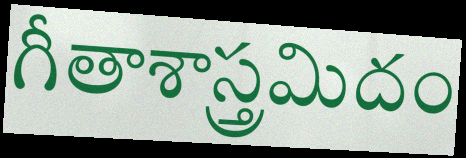
గీతాశాస్త్రమిదం